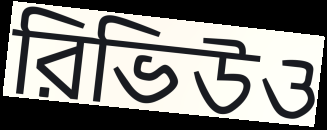
রিভিউও